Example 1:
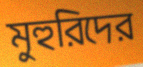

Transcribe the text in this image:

মুহুরিদের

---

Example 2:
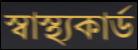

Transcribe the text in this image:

স্বাস্থ্যকার্ড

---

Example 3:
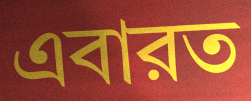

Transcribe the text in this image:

এবারত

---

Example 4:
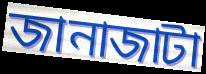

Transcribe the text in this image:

জানাজাটা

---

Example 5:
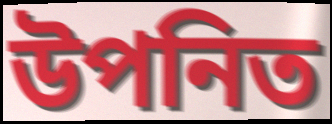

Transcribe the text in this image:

উপনিত